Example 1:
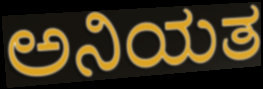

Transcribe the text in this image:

ಅನಿಯತ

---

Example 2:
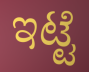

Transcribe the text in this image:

ಇಟ್ಟೆ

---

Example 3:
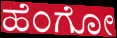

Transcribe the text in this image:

ಹೆಂಗೋ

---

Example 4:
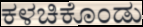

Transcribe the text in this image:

ಕಳಚಿಕೊಂಡು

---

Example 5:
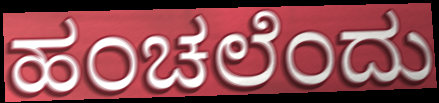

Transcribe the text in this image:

ಹಂಚಲೆಂದು